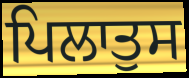
ਪਿਲਾਤੁਸ